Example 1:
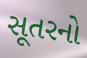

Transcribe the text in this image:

સૂતરનો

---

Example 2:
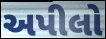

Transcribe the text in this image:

અપીલો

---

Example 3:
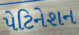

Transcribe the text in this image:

પેટિનેશન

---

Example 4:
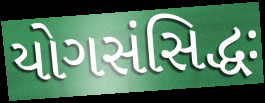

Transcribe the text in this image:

યોગસંસિદ્ધઃ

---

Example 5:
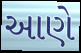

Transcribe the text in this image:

આણે